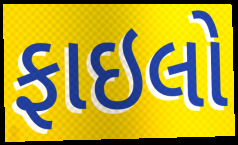
ફાઇલો